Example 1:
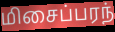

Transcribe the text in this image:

மிசைப்பரந்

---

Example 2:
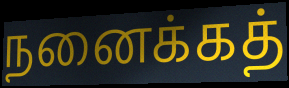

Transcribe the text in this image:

நனைக்கத்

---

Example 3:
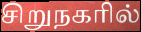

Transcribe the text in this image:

சிறுநகரில்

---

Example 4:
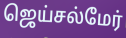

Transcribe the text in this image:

ஜெய்சல்மேர்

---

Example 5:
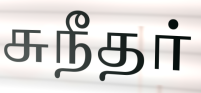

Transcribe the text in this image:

சுநீதர்